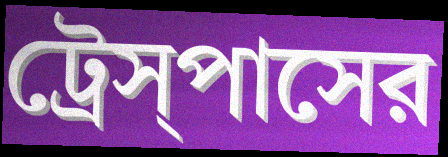
ট্রেস্‌পাসের